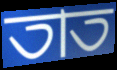
তাত